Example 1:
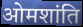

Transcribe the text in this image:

ओमशांति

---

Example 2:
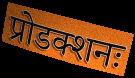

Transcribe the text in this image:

प्रोडक्शनः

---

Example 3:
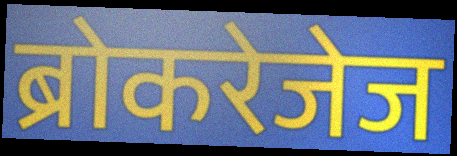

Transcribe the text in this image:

ब्रोकरेजेज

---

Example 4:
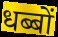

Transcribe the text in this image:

धब्बों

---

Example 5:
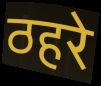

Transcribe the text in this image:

ठहरे